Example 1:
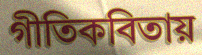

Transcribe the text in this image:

গীতিকবিতায়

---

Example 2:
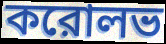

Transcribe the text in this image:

করোলভ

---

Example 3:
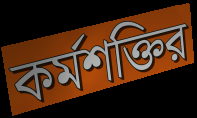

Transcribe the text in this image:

কর্মশক্তির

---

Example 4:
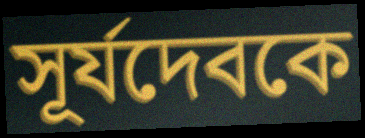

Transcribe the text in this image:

সূর্যদেবকে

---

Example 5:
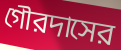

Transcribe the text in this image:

গৌরদাসের